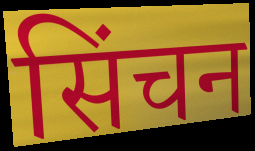
सिंचन